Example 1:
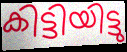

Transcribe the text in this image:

കിട്ടിയിട്ടു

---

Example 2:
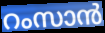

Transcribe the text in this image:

റംസാൻ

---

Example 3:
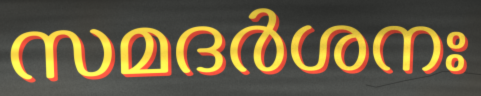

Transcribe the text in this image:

സമദർശനഃ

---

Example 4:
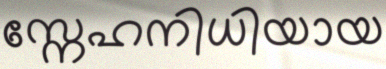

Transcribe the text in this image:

സ്നേഹനിധിയായ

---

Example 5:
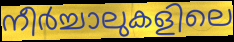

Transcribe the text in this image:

നീർച്ചാലുകളിലെ